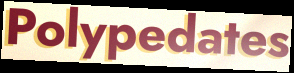
Polypedates